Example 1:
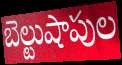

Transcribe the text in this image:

బెల్టుషాపుల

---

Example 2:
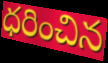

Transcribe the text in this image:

ధరించిన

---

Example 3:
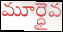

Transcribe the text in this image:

మూర్ధైవ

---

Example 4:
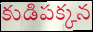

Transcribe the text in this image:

కుడిపక్కన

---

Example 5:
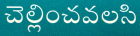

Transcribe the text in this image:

చెల్లించవలసి